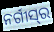
ନର୍ଗୀସ୍‍ର